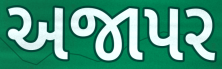
અજાપર